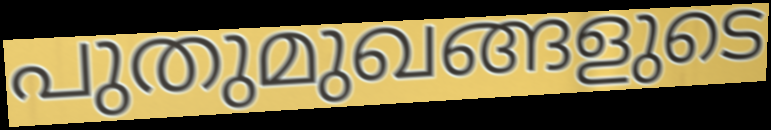
പുതുമുഖങ്ങളുടെ